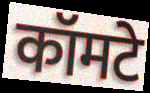
कॉमटे